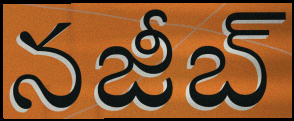
నజీబ్